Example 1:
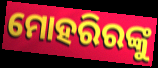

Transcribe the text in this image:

ମୋହରିରଙ୍କୁ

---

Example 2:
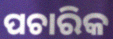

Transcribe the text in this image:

ପଚାରିକ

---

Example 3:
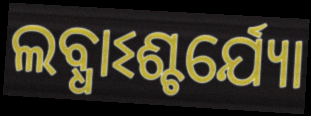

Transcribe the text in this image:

ଲବ୍ଧାଽଶ୍ଚର୍ଯ୍ୟୋ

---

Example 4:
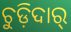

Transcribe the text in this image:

ଚୁଡ଼ିଦାର୍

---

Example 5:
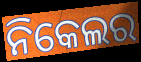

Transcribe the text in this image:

ନିକେଲର